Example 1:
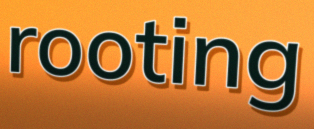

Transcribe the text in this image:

rooting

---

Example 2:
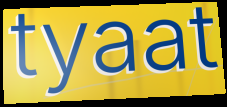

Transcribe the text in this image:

tyaat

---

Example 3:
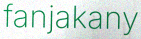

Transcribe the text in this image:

fanjakany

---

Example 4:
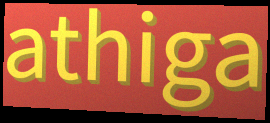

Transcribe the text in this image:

athiga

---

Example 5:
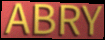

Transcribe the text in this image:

ABRY